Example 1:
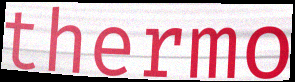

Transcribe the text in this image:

thermo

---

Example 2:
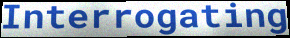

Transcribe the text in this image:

Interrogating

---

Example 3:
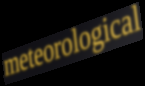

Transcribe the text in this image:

meteorological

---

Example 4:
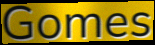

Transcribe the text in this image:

Gomes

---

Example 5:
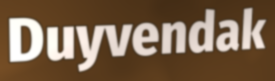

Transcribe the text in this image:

Duyvendak